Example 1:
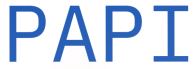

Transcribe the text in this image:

PAPI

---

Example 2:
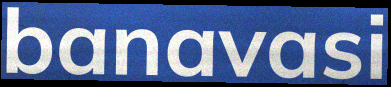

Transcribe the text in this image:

banavasi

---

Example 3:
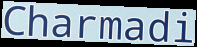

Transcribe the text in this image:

Charmadi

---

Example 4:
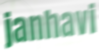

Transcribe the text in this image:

janhavi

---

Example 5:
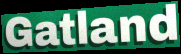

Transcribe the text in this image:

Gatland